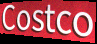
Costco